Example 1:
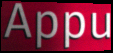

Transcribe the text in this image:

Appu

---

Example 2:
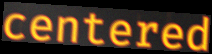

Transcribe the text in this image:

centered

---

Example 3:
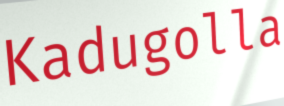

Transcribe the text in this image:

Kadugolla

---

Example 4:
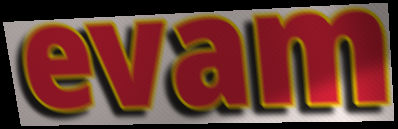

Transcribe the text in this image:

evam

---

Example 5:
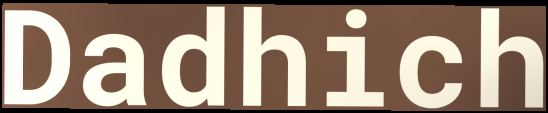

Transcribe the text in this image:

Dadhich